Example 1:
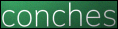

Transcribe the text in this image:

conches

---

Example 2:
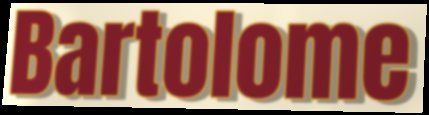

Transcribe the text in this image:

Bartolome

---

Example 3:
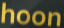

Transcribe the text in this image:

hoon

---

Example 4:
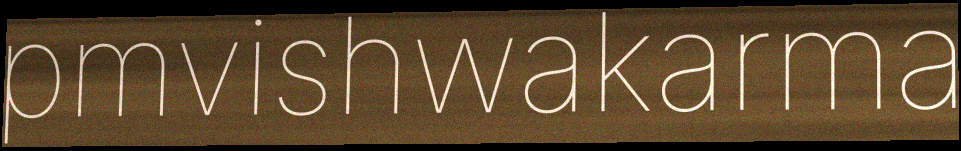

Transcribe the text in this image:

pmvishwakarma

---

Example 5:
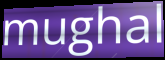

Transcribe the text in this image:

mughal